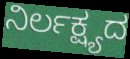
ನಿರ್ಲಕ್ಷ್ಯದ